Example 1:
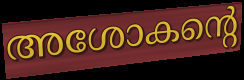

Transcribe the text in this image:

അശോകന്റെ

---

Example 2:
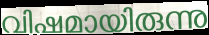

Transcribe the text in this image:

വിഷമായിരുന്നു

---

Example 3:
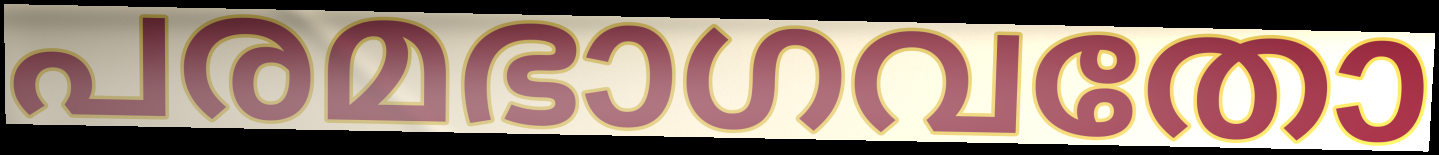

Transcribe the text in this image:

പരമഭാഗവതോ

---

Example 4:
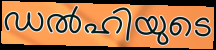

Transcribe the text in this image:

ഡൽഹിയുടെ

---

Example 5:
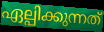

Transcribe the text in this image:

ഏല്പിക്കുന്നത്